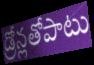
డ్రోన్లతోపాటు